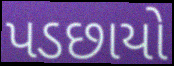
પડછાયો